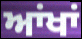
ਆਂਖਾਂ